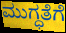
ಮುಗ್ಧತೆಗೆ